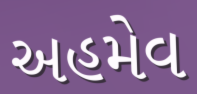
અહમેવ